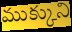
ముక్కుని